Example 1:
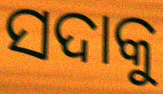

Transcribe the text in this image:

ସଦାକୁ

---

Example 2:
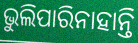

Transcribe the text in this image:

ଭୁଲିପାରିନାହାନ୍ତି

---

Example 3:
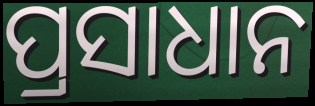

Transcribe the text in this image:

ପ୍ରସାଧାନ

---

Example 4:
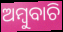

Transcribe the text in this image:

ଅମ୍ବୁବାଚି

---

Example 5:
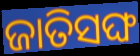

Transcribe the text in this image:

ଜାତିସଙ୍ଘ